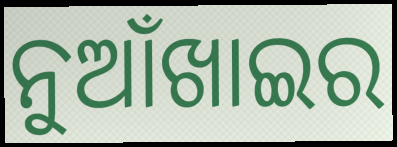
ନୁଆଁଖାଇର